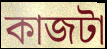
কাজটা